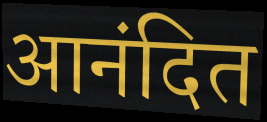
आनंदित